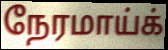
நேரமாய்க்